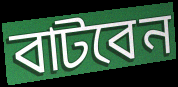
বাটবেন